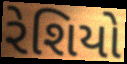
રેશિયો